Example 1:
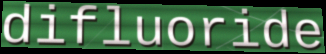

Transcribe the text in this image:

difluoride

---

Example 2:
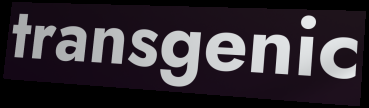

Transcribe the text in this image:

transgenic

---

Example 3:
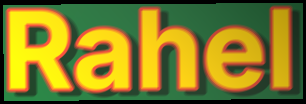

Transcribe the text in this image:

Rahel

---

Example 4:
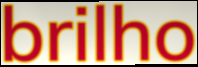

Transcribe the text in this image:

brilho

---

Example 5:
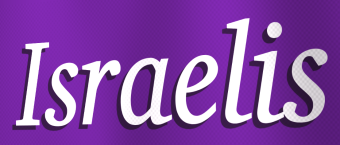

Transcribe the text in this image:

Israelis